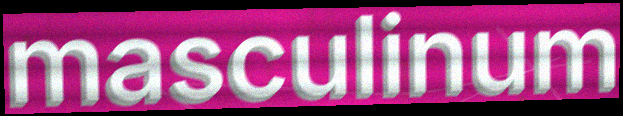
masculinum